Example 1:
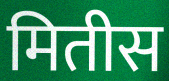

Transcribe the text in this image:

मितीस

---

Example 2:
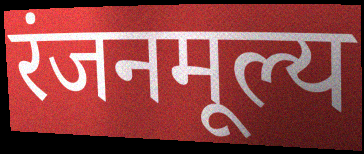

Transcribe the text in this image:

रंजनमूल्य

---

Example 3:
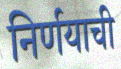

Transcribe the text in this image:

निर्णयाची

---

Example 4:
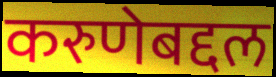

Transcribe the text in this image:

करुणेबद्दल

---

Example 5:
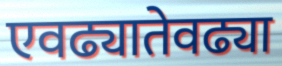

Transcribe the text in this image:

एवढ्यातेवढ्या